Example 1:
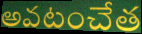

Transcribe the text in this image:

అవటంచేత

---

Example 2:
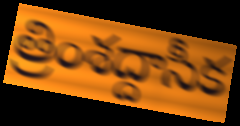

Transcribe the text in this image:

త్రింశద్దాసీక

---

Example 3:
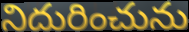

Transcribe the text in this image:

నిదురించును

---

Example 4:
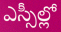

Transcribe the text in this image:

ఎస్సీల్లో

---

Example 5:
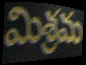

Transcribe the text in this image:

మిశ్రమ